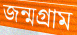
জন্মগ্রাম